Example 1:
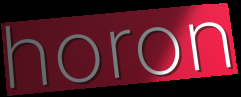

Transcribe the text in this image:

horon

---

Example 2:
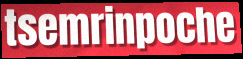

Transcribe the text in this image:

tsemrinpoche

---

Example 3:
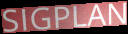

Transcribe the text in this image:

SIGPLAN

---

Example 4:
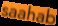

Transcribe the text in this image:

saahab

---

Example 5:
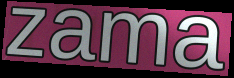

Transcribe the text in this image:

zama